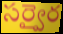
సర్వైర